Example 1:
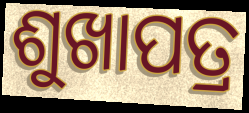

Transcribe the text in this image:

ଶୁଖାପତ୍ର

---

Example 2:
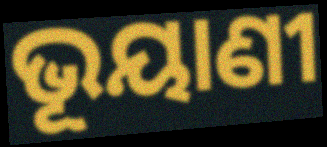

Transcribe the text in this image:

ଭୂୟାଣୀ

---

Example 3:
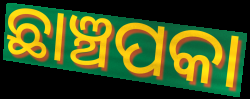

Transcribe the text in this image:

ଛାଞ୍ଚପକା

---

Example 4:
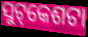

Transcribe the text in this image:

ସୁଟ୍‌କେଶଟା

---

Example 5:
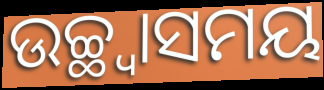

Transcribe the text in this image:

ଉଚ୍ଛ୍ୱାସମୟ